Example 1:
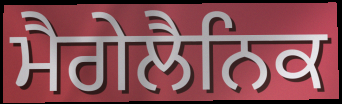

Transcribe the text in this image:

ਮੈਗੇਲੈਨਿਕ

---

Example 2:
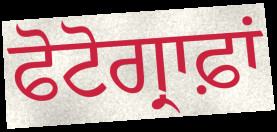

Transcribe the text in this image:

ਫੋਟੋਗ੍ਰਾਫ਼ਾਂ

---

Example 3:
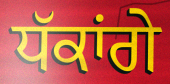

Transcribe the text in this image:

ਧੱਕਾਂਗੇ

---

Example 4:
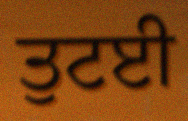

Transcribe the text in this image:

ਤੁਟਈ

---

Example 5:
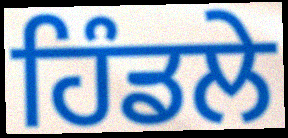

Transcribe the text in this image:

ਹਿੰਡਲੇ